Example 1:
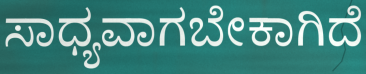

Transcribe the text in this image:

ಸಾಧ್ಯವಾಗಬೇಕಾಗಿದೆ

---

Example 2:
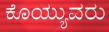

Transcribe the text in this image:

ಕೊಯ್ಯುವರು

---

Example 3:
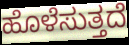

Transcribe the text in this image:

ಹೊಳೆಸುತ್ತದೆ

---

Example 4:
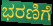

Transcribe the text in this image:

ಭರಣಿಗೆ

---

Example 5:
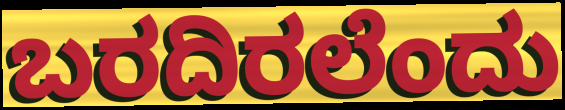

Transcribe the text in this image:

ಬರದಿರಲೆಂದು